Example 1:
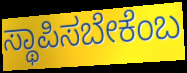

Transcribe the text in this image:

ಸ್ಥಾಪಿಸಬೇಕೆಂಬ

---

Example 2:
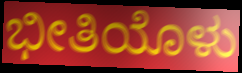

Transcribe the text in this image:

ಭೀತಿಯೊಳು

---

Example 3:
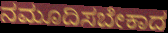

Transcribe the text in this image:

ನಮೂದಿಸಬೇಕಾದ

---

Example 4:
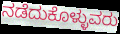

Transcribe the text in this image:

ನಡೆದುಕೊಳ್ಳುವರು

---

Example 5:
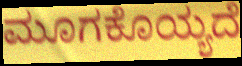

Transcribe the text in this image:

ಮೂಗಕೊಯ್ಯದೆ